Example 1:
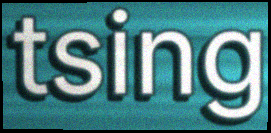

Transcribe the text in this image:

tsing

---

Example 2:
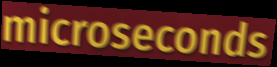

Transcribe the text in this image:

microseconds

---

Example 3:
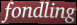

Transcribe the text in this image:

fondling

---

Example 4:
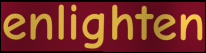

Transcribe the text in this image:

enlighten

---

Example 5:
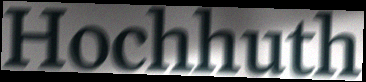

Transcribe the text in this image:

Hochhuth